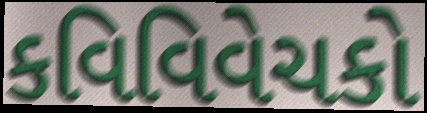
કવિવિવેચકો